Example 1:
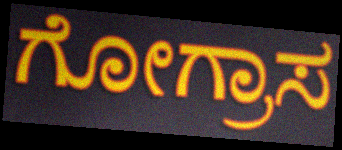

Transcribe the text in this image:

ಗೋಗ್ರಾಸ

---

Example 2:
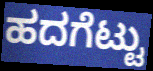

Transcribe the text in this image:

ಹದಗೆಟ್ಟು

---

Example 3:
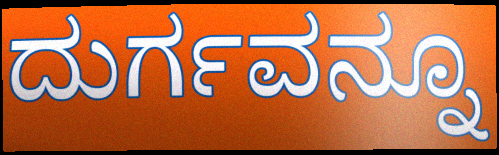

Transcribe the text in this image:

ದುರ್ಗವನ್ನೂ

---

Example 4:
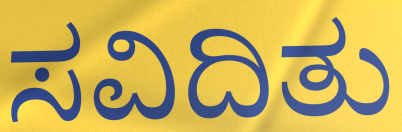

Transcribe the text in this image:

ಸವಿದಿತು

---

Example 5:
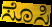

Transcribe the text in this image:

ಸೊಸಿ